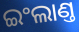
ଇଂଲାଣ୍ତ